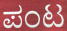
ಪಂಟ